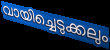
വായിച്ചെടുക്കലും